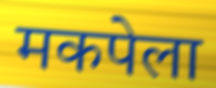
मकपेला